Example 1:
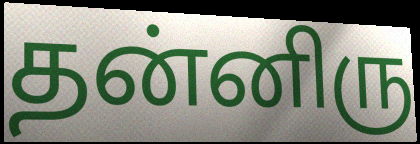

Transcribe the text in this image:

தன்னிரு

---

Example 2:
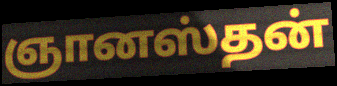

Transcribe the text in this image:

ஞானஸ்தன்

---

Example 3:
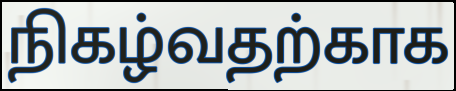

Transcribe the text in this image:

நிகழ்வதற்காக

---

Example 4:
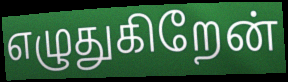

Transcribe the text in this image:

எழுதுகிறேன்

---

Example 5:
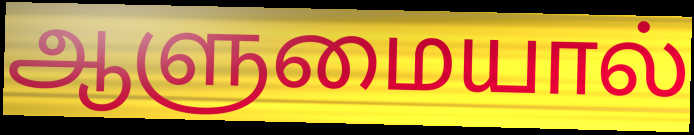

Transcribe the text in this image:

ஆளுமையால்